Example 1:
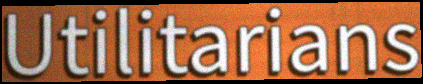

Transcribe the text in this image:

Utilitarians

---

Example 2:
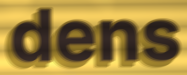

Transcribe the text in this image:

dens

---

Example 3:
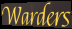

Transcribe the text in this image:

Warders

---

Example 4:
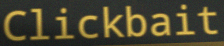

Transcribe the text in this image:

Clickbait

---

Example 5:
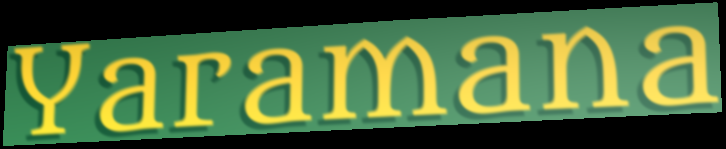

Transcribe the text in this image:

Yaramana